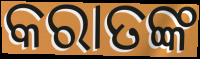
କରାତଙ୍କ